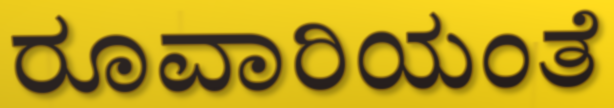
ರೂವಾರಿಯಂತೆ